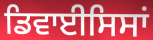
ਡਿਵਾਈਸਿਸਾਂ